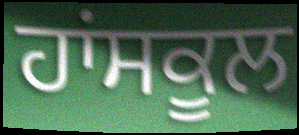
ਹਾਂਸਕੂਲ